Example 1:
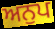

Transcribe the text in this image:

ਅਨੁਪ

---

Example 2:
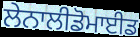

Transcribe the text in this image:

ਲੇਨਾਲੀਡੋਮਾਈਡ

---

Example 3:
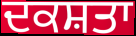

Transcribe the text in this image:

ਦਕਸ਼ਤਾ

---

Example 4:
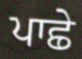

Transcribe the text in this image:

ਪਾਛੇ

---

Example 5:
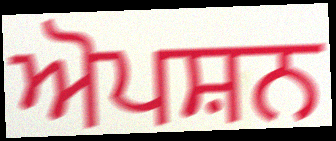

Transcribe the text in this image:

ਅੋਪਸ਼ਨ